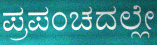
ಪ್ರಪಂಚದಲ್ಲೇ